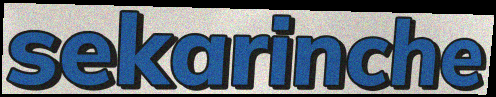
sekarinche